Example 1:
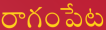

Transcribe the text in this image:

రాగంపేట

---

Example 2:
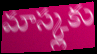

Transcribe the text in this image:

మాస్క్లకు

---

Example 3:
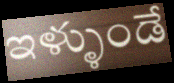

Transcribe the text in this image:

ఇళ్ళుండే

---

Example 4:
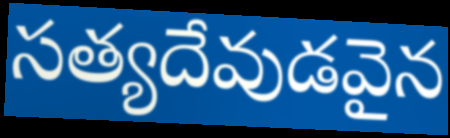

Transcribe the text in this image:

సత్యదేవుడవైన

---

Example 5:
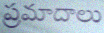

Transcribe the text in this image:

ప్రమాదాలు